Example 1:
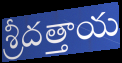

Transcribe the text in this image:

శ్రీదత్తాయ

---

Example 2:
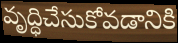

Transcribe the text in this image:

వృద్ధిచేసుకోవడానికి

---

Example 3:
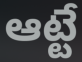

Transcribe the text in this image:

ఆట్టే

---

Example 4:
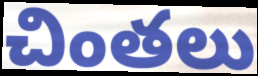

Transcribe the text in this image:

చింతలు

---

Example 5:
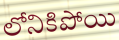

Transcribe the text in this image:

లోనికిపోయి